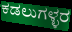
ಕಡಲುಗಳ್ಳರ